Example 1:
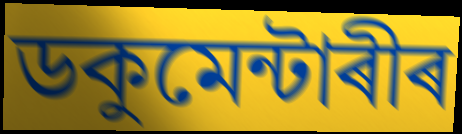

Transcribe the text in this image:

ডকুমেন্টাৰীৰ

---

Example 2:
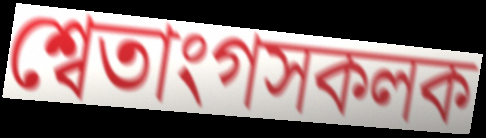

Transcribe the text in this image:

শ্বেতাংগসকলক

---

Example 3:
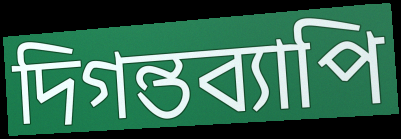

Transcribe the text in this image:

দিগন্তব্যাপি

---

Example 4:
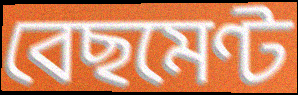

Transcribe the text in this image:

বেছমেণ্ট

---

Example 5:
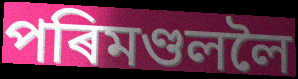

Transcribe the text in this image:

পৰিমণ্ডললৈ